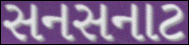
સનસનાટ